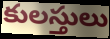
కులస్తులు